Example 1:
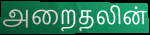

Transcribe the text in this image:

அறைதலின்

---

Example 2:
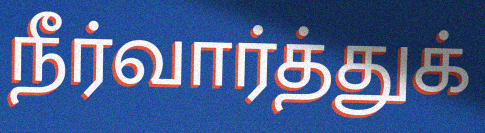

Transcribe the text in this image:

நீர்வார்த்துக்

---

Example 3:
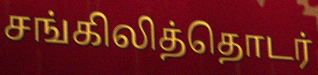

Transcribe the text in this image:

சங்கிலித்தொடர்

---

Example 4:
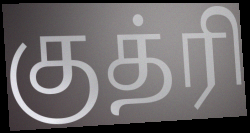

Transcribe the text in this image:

குத்ரி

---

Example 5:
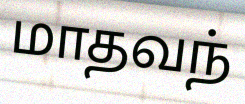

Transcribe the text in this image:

மாதவந்